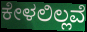
ಕೇಳಲಿಲ್ಲವೆ